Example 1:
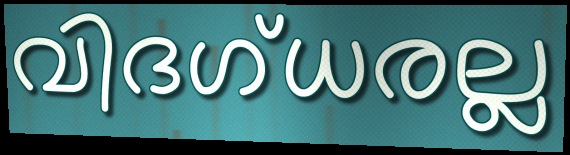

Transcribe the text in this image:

വിദഗ്ധരല്ല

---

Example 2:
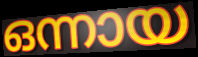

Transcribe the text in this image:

ഒന്നായ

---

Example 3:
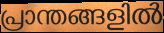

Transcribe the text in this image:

പ്രാന്തങ്ങളിൽ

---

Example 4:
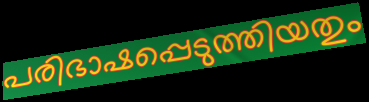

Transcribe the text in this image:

പരിഭാഷപ്പെടുത്തിയതും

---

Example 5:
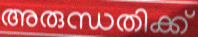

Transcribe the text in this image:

അരുന്ധതിക്ക്